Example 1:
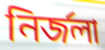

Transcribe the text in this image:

নির্জলা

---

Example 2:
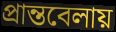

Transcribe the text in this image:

প্রান্তবেলায়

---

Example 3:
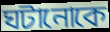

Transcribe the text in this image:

ঘটানোকে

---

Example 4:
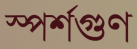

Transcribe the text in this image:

স্পর্শগুণ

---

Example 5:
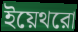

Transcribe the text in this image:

ইয়েথরো